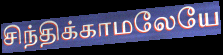
சிந்திக்காமலேயே